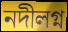
নদীলগ্ন